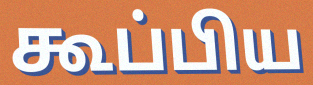
கூப்பிய